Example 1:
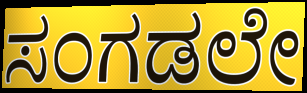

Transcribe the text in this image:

ಸಂಗಡಲೇ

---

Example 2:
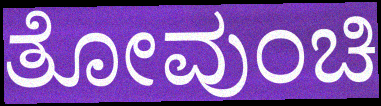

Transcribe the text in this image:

ತೋವುಂಚಿ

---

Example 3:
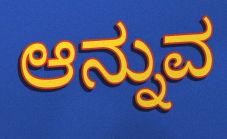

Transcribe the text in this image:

ಆನ್ನುವ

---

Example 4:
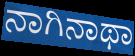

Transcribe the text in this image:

ನಾಗಿನಾಥಾ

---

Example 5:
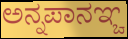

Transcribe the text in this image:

ಅನ್ನಪಾನಞ್ಚ